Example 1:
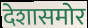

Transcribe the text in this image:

देशासमोर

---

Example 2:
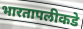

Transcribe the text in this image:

भारतापलीकडे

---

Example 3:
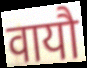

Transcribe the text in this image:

वायौ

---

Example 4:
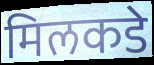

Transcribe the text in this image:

मिलकडे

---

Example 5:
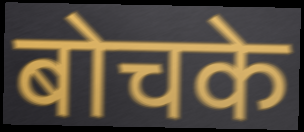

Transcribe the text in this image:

बोचके